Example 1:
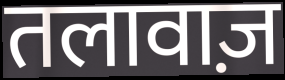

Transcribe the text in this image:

तलावाज़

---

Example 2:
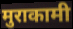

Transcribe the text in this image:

मुराकामी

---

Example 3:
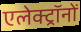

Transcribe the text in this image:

एलेक्ट्रॉनों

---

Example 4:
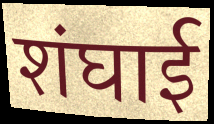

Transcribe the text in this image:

शंघाई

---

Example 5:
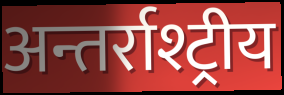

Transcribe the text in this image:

अन्तर्राश्ट्रीय